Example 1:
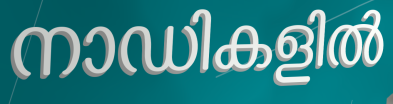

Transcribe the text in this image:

നാഡികളിൽ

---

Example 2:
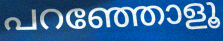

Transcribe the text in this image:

പറഞ്ഞോളൂ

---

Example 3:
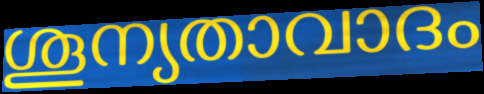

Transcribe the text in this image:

ശൂന്യതാവാദം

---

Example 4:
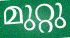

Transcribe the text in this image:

മുറ്റു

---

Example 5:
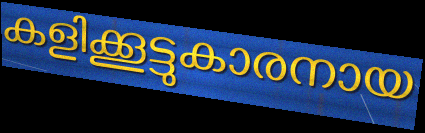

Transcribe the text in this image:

കളിക്കൂട്ടുകാരനായ